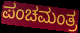
ಪಂಚಮಂತ್ರ